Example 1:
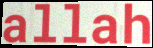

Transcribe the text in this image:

allah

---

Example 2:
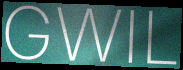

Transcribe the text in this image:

GWIL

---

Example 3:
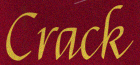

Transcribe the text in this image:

Crack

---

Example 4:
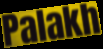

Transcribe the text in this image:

Palakh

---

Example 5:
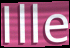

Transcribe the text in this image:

Ille